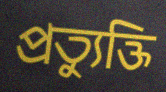
প্রত্যুক্তি